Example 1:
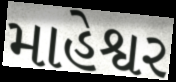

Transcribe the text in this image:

માહેશ્વર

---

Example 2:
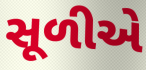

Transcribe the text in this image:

સૂળીએ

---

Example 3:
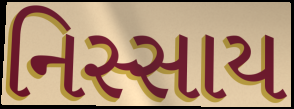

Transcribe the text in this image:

નિસ્સાય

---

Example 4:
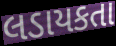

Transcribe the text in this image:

લડાયકતા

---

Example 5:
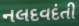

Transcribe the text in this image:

નલદવદંતી